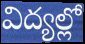
విద్యల్లో